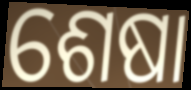
ଶେଷା